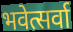
भवेत्सर्वा